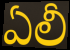
ఏలీ